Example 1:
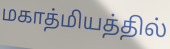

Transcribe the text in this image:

மகாத்மியத்தில்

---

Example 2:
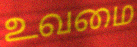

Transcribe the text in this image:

உவமை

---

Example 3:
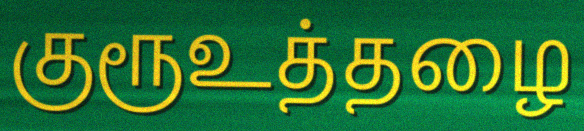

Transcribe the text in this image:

குரூஉத்தழை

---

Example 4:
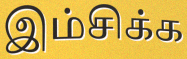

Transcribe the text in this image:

இம்சிக்க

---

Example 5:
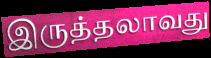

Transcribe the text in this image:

இருத்தலாவது